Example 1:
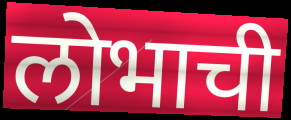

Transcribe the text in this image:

लोभाची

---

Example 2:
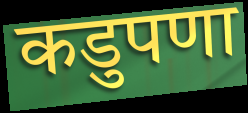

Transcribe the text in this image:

कडुपणा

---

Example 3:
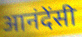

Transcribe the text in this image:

आनंदेंसी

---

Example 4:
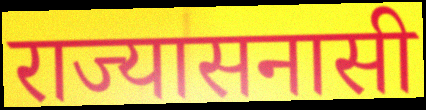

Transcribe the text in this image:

राज्यासनासी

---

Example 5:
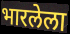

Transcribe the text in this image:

भारलेला